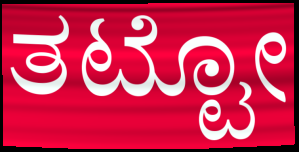
ತಟ್ಟೋ